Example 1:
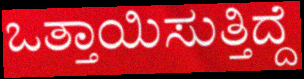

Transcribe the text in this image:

ಒತ್ತಾಯಿಸುತ್ತಿದ್ದೆ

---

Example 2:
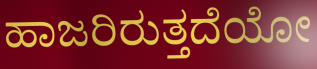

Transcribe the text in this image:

ಹಾಜರಿರುತ್ತದೆಯೋ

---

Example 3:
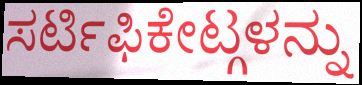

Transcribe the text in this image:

ಸರ್ಟಿಫಿಕೇಟ್ಗಳನ್ನು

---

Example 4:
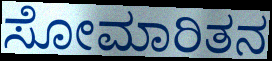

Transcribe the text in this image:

ಸೋಮಾರಿತನ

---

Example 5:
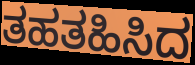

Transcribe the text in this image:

ತಹತಹಿಸಿದ